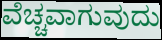
ವೆಚ್ಚವಾಗುವುದು